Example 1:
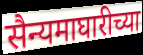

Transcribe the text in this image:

सैन्यमाघारीच्या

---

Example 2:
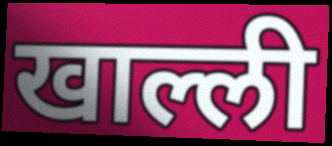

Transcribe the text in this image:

खाल्ली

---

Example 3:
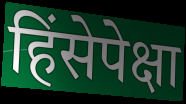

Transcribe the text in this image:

हिंसेपेक्षा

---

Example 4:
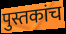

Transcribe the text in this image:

पुस्तकांच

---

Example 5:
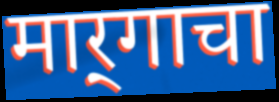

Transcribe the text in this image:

मार्गाचा